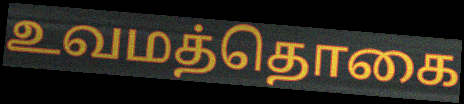
உவமத்தொகை